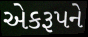
એકરૂપને